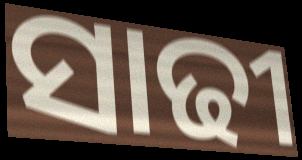
ସାଢୀ